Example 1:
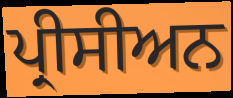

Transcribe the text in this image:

ਪ੍ਰੀਸੀਅਨ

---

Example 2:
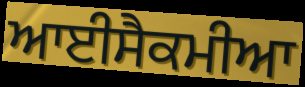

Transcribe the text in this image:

ਆਈਸੈਕਮੀਆ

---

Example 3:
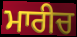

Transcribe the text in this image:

ਮਾਰੀਚ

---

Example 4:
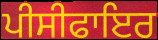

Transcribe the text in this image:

ਪੀਸੀਫਾਇਰ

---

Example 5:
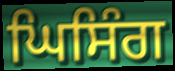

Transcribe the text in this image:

ਘਿਸਿੰਗ